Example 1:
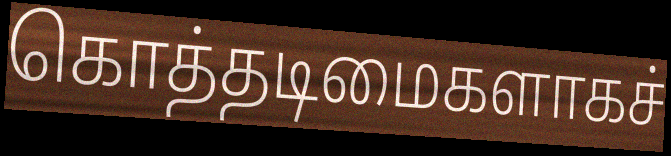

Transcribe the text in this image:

கொத்தடிமைகளாகச்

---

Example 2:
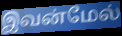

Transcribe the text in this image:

இவன்மேல்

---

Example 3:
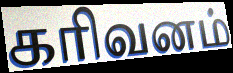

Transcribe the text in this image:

கரிவனம்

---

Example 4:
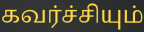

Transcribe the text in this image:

கவர்ச்சியும்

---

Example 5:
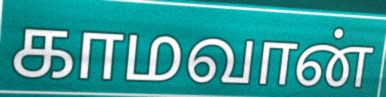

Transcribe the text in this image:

காமவான்